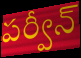
పర్వీన్